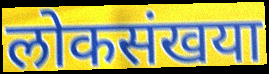
लोकसंखया